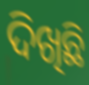
ଦିଖିଛି